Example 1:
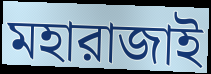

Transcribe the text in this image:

মহারাজাই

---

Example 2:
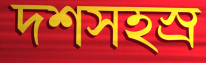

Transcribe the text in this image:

দশসহস্র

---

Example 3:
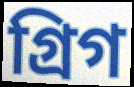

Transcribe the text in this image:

গ্রিগ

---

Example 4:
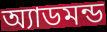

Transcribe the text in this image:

অ্যাডমন্ড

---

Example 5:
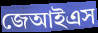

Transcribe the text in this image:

জেআইএস